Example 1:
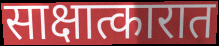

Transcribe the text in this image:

साक्षात्कारात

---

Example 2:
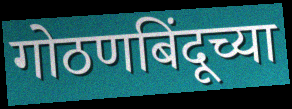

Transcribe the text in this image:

गोठणबिंदूच्या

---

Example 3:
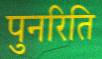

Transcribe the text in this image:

पुनरिति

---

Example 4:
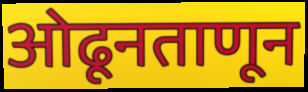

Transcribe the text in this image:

ओढूनताणून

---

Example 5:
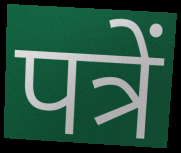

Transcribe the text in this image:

पत्रें